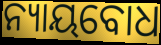
ନ୍ୟାୟବୋଧ